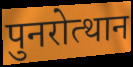
पुनरोत्थान